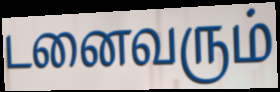
டனைவரும்